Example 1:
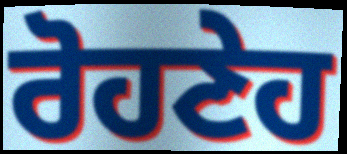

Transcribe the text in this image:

ਰੋਹਣੇਹ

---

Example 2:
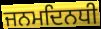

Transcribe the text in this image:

ਜਨਮਦਿਨਧੀ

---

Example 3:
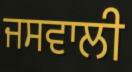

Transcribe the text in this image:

ਜਸਵਾਲੀ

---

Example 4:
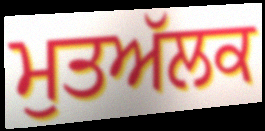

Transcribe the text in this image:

ਮੁਤਅੱਲਕ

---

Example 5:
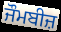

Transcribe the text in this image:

ਜੌਮਬੀਜ਼